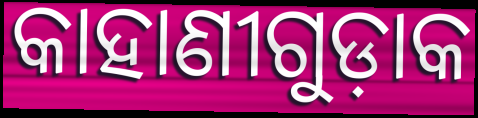
କାହାଣୀଗୁଡ଼ାକ